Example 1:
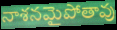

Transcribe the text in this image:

నాశనమైపోతావు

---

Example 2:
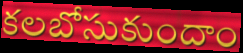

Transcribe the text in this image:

కలబోసుకుందాం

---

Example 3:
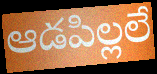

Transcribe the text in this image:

ఆడపిల్లలే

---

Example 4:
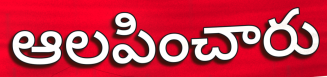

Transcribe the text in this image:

ఆలపించారు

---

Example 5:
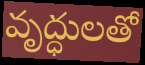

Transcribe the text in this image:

వృద్ధులతో